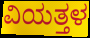
ವಿಯತ್ತಳ